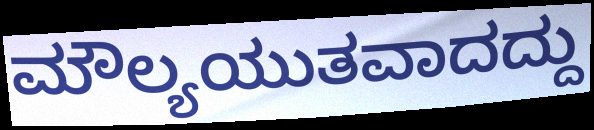
ಮೌಲ್ಯಯುತವಾದದ್ದು